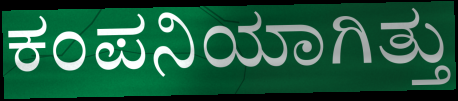
ಕಂಪನಿಯಾಗಿತ್ತು